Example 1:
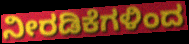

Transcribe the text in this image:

ನೀರಡಿಕೆಗಳಿಂದ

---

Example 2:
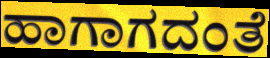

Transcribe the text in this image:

ಹಾಗಾಗದಂತೆ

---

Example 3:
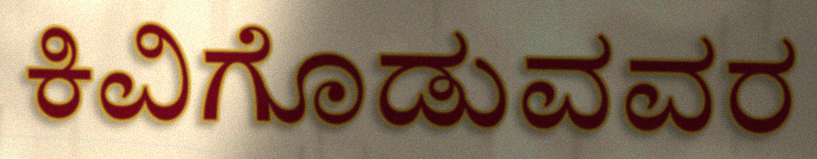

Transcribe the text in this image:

ಕಿವಿಗೊಡುವವರ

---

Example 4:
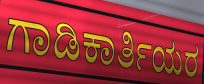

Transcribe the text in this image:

ಗಾಡಿಕಾರ್ತಿಯರ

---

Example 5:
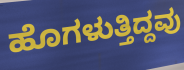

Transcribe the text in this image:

ಹೊಗಳುತ್ತಿದ್ದವು